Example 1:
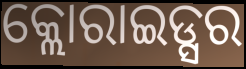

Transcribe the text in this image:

କ୍ଲୋରାଇଡ୍ସର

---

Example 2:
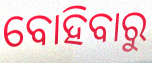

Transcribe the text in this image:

ବୋହିବାରୁ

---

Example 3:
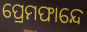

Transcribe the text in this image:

ପ୍ରେମଫାନ୍ଦେ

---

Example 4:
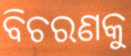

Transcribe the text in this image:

ବିଚରଣକୁ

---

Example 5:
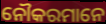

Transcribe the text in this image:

ନୌକରମାନେ